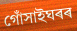
গোঁসাইঘৰৰ